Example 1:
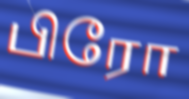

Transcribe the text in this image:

பிரோ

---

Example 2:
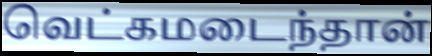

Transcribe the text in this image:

வெட்கமடைந்தான்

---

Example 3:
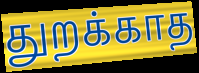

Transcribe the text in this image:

துறக்காத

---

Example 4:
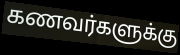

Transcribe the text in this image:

கணவர்களுக்கு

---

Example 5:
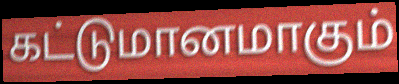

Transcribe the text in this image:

கட்டுமானமாகும்